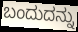
ಬಂದುದನ್ನು